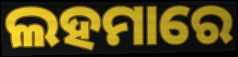
ଲହମାରେ